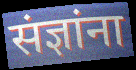
संज्ञांना